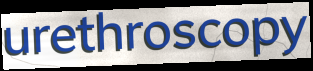
urethroscopy